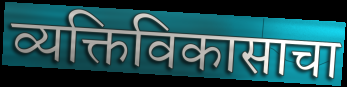
व्यक्तिविकासाचा